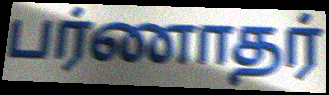
பர்ணாதர்